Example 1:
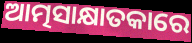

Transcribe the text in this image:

ଆତ୍ମସାକ୍ଷାତକାରେ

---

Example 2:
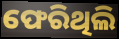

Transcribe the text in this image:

ଫେରିଥିଲି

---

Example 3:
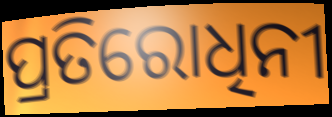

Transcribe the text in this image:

ପ୍ରତିରୋଧିନୀ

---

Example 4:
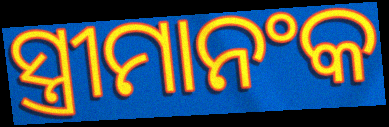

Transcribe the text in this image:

ସ୍ତ୍ରୀମାନଂକ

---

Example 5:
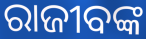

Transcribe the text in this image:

ରାଜୀବଙ୍କ